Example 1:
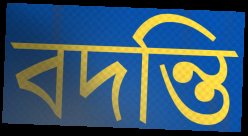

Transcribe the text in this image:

বদন্তি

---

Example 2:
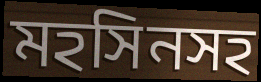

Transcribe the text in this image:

মহসিনসহ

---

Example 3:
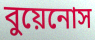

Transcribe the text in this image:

বুয়েনোস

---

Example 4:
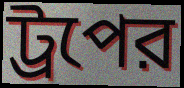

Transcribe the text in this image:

ট্রপের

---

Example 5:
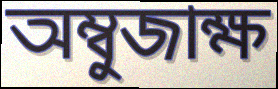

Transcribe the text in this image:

অম্বুজাক্ষ